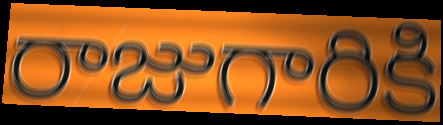
రాజుగారికి